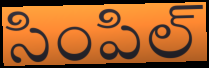
సింపిల్